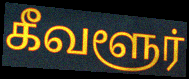
கீவளூர்